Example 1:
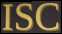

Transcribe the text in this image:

ISC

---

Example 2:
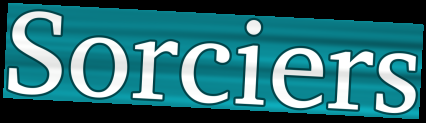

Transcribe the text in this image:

Sorciers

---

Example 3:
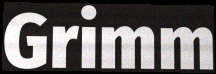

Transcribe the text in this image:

Grimm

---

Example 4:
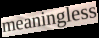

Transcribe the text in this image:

meaningless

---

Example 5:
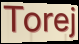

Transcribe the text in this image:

Torej